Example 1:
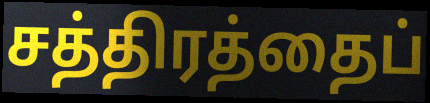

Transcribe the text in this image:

சத்திரத்தைப்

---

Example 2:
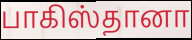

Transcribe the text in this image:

பாகிஸ்தானா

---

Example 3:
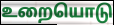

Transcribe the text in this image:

உறையொடு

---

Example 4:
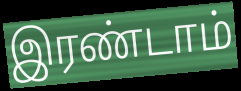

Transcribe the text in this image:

இரண்டாம்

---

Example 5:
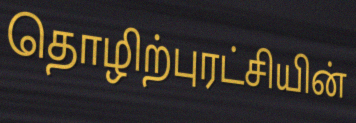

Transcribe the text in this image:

தொழிற்புரட்சியின்